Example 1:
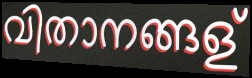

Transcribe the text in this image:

വിതാനങ്ങള്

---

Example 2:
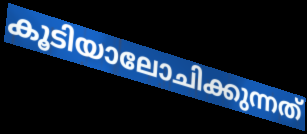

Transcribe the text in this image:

കൂടിയാലോചിക്കുന്നത്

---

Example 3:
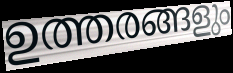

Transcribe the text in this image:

ഉത്തരങ്ങളും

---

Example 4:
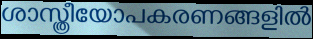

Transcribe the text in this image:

ശാസ്ത്രീയോപകരണങ്ങളിൽ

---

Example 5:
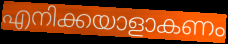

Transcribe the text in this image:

എനിക്കയാളാകണം